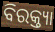
ବିରକ୍ତ୍ୟା